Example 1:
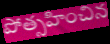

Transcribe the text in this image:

పోత్సహించిన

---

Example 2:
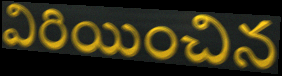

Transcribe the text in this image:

విరియించిన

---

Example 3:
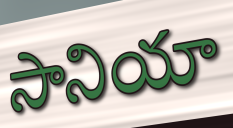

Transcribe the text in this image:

సానియా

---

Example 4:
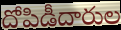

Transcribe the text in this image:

దోపిడీదారుల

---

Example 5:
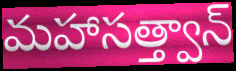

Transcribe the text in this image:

మహాసత్త్వాన్